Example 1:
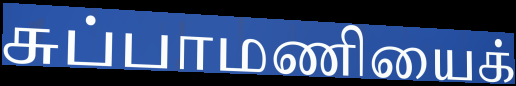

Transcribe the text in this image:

சுப்பாமணியைக்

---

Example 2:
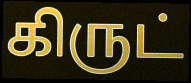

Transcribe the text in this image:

கிருட்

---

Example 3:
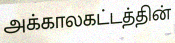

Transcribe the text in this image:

அக்காலகட்டத்தின்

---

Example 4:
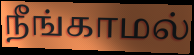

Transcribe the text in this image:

நீங்காமல்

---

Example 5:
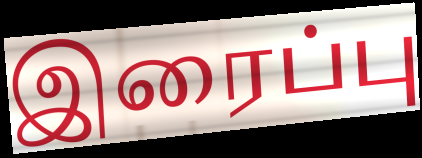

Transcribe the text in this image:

இரைப்பு